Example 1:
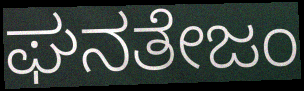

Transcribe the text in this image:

ಘನತೇಜಂ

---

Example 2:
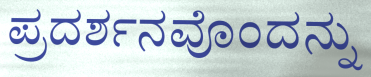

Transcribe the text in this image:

ಪ್ರದರ್ಶನವೊಂದನ್ನು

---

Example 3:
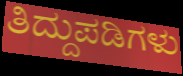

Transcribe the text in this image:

ತಿದ್ದುಪಡಿಗಳು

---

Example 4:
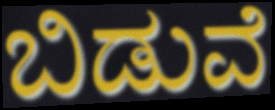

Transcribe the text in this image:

ಬಿಡುವೆ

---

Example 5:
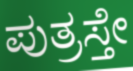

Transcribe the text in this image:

ಪುತ್ರಸ್ತೇ